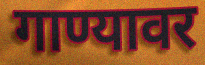
गाण्यावर